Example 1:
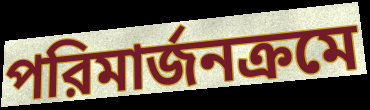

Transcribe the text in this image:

পরিমার্জনক্রমে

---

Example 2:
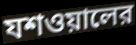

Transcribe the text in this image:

যশওয়ালের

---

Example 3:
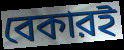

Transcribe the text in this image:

বেকারই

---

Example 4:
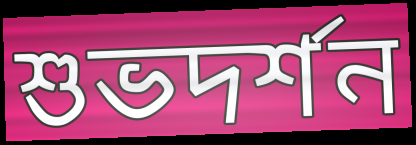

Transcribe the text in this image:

শুভদর্শন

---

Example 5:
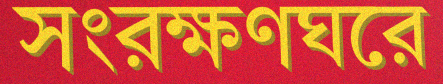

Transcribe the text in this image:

সংরক্ষণঘরে